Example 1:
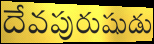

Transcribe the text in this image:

దేవపురుషుడు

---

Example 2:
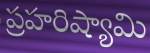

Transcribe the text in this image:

ప్రహరిష్యామి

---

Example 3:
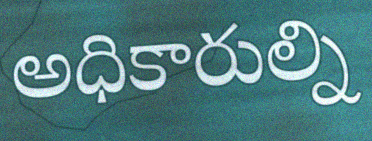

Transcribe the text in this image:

అధికారుల్ని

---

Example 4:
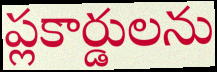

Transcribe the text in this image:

ప్లకార్డులను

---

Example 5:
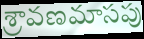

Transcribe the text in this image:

శ్రావణమాసపు